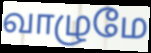
வாழுமே